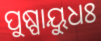
ପୁଷ୍ପାୟୁଧଃ